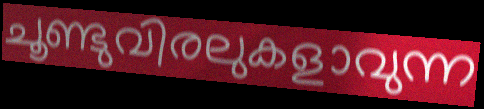
ചൂണ്ടുവിരലുകളാവുന്ന